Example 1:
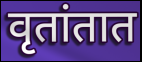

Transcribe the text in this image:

वृतांतात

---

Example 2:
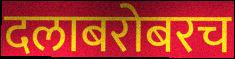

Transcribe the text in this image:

दलाबरोबरच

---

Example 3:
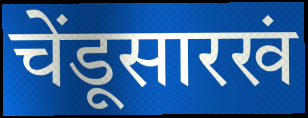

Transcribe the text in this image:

चेंडूसारखं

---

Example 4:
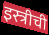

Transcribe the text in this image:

इस्त्रीची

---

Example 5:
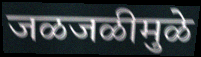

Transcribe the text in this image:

जळजळीमुळे